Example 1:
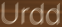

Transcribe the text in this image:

Urdd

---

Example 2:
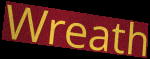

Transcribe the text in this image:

Wreath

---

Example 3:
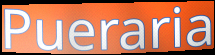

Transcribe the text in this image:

Pueraria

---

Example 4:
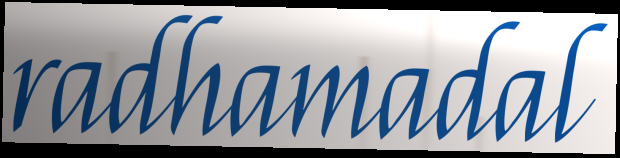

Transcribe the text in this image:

radhamadal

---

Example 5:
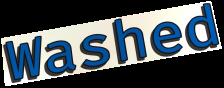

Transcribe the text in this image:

Washed